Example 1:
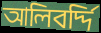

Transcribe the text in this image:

আলিবর্দ্দি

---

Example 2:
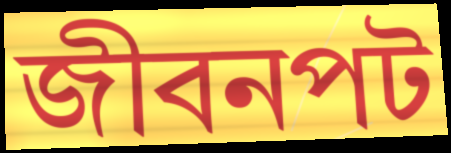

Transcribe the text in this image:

জীবনপট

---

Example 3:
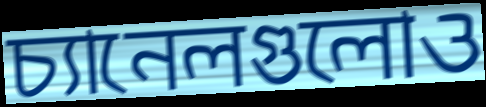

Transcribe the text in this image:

চ্যানেলগুলোও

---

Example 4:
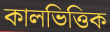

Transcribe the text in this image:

কালভিত্তিক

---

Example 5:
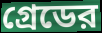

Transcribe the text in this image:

গ্রেডের